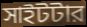
সাইটটার